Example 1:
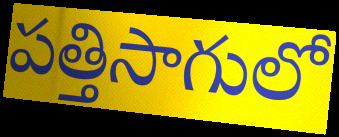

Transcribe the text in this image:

పత్తిసాగులో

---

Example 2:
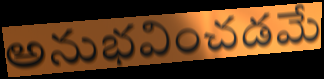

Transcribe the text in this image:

అనుభవించడమే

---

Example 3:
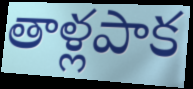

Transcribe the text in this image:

తాళ్లపాక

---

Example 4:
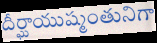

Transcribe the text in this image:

దీర్ఘాయుష్మంతునిగా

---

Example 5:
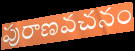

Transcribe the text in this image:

పురాణవచనం